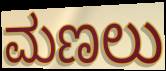
ಮಣಲು